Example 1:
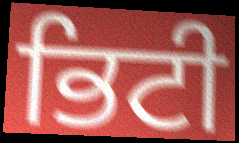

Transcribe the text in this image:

ਭਿਟੀ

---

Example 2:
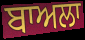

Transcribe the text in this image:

ਬਾਅਲਾ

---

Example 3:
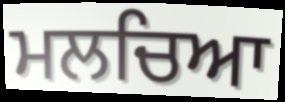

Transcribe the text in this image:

ਮਲਚਿਆ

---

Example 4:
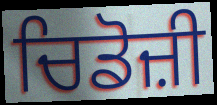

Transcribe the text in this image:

ਚਿਡੋਜ਼ੀ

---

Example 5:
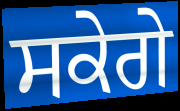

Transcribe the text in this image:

ਸਕੇਗੇ